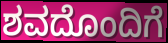
ಶವದೊಂದಿಗೆ